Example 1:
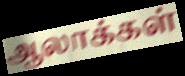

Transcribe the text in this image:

ஆலாக்கள்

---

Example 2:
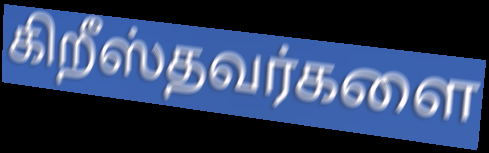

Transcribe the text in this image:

கிறீஸ்தவர்களை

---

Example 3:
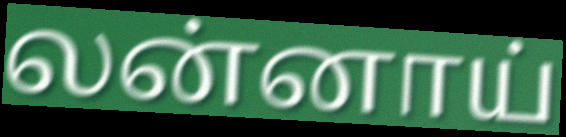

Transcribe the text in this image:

லன்னாய்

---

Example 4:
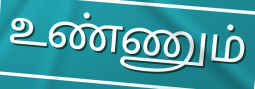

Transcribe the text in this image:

உண்ணும்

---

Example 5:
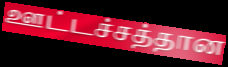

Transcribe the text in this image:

ஊட்டச்சத்தான